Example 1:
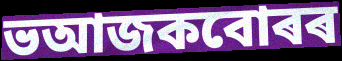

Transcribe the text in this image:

ভআজকবোৰৰ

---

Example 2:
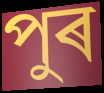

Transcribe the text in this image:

পুৰ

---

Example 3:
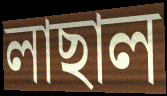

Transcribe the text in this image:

লাছাল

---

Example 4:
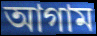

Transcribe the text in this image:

আগাম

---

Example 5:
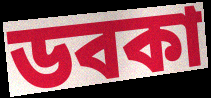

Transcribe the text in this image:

ডবকা